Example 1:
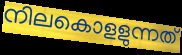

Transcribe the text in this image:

നിലകൊളളുന്നത്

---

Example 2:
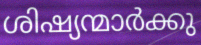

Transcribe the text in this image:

ശിഷ്യന്മാർക്കു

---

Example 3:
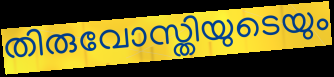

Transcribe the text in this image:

തിരുവോസ്തിയുടെയും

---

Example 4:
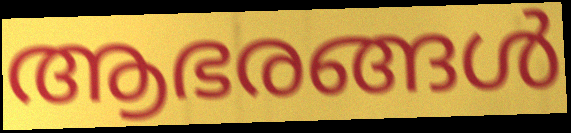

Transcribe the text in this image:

ആഭരങ്ങൾ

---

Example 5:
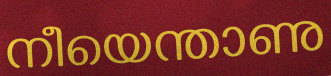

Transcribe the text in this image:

നീയെന്താണു